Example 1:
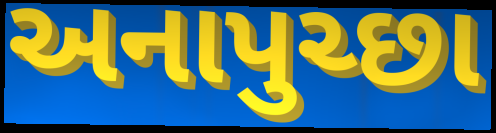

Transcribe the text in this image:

અનાપુચ્છા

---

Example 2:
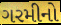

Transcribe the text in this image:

ગરમીનો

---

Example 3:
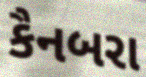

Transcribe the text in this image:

કૈનબરા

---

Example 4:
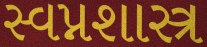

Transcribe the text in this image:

સ્વપ્નશાસ્ત્ર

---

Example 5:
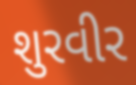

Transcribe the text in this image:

શુરવીર